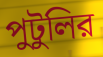
পুটুলির